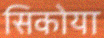
सिकोया